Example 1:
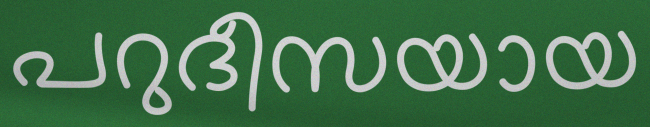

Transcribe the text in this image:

പറുദീസയായ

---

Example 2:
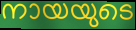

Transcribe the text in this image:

നായയുടെ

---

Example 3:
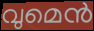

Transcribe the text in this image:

വുമെൻ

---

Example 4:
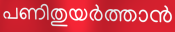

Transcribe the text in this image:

പണിതുയർത്താൻ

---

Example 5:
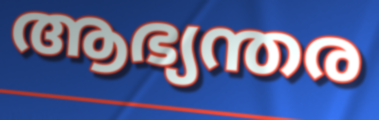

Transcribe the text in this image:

ആഭ്യന്തര